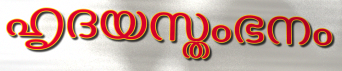
ഹൃദയസ്തംഭനം